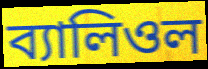
ব্যালিওল